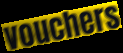
vouchers